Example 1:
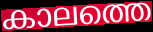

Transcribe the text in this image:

കാലത്തെ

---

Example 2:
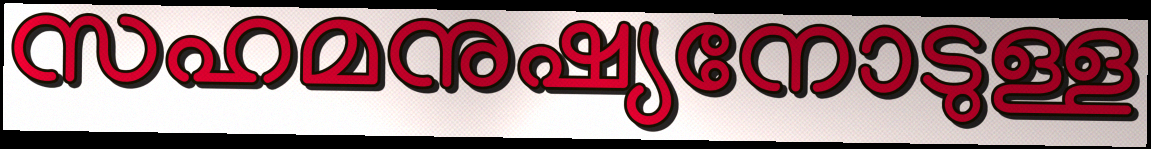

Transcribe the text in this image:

സഹമനുഷ്യനോടുള്ള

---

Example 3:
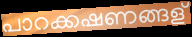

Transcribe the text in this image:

പാറക്കഷണങ്ങള്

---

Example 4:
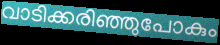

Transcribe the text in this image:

വാടിക്കരിഞ്ഞുപോകും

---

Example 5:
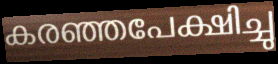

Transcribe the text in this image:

കരഞ്ഞപേക്ഷിച്ചു